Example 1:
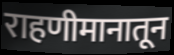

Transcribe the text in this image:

राहणीमानातून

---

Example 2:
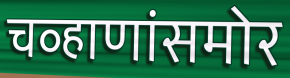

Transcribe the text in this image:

चव्हाणांसमोर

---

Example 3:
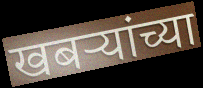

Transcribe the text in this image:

खबऱ्यांच्या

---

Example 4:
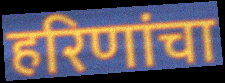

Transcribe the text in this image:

हरिणांचा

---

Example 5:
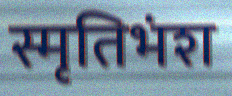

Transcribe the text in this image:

स्मृतिभंश